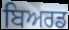
ਬਿਅਰਡ